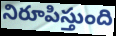
నిరూపిస్తుంది